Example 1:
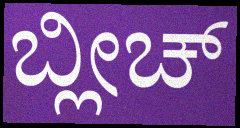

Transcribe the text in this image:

ಬ್ಲೀಚ್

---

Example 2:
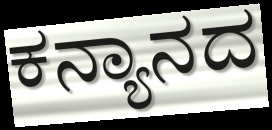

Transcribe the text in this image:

ಕನ್ಯಾನದ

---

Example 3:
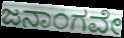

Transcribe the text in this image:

ಜನಾಂಗವೇ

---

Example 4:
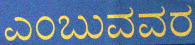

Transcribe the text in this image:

ಎಂಬುವವರ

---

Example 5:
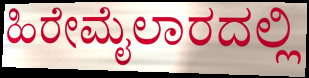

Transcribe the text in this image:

ಹಿರೇಮೈಲಾರದಲ್ಲಿ